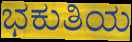
ಭಕುತಿಯ